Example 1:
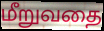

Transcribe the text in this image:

மீறுவதை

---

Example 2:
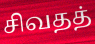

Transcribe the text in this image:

சிவதத்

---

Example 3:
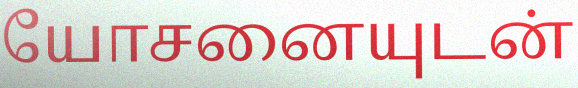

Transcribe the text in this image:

யோசனையுடன்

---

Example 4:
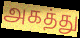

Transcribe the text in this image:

அகத்து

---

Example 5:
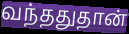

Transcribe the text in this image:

வந்ததுதான்